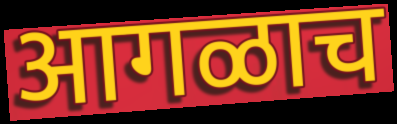
आगळाच